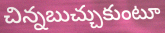
చిన్నబుచ్చుకుంటూ